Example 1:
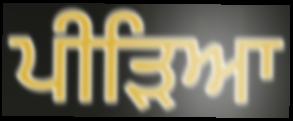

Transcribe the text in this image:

ਪੀੜਿਆ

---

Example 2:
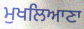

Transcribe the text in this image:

ਮੁਖਲਿਆਣਾ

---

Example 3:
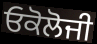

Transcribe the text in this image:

ਓਕੋਲੋਜੀ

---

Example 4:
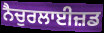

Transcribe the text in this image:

ਨੈਚੁਰਲਾਈਜ਼ਡ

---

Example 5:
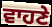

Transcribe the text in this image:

ਵਾਹਣੇ